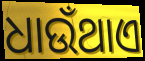
ଧାଉଁଥାଏ